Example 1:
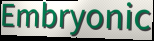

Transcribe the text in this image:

Embryonic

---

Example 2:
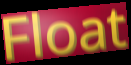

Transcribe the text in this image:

Float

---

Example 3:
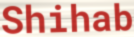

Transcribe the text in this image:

Shihab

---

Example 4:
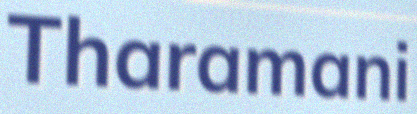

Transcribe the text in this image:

Tharamani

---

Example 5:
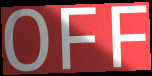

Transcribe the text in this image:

OFF